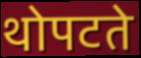
थोपटते